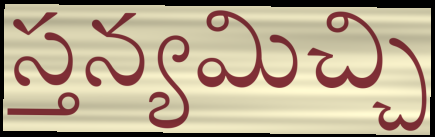
స్తన్యమిచ్చి